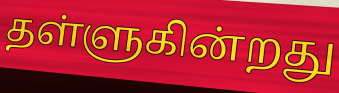
தள்ளுகின்றது